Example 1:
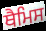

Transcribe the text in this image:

ਥੈਮਿਸ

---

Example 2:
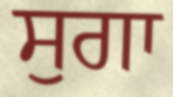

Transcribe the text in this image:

ਸੁਗਾ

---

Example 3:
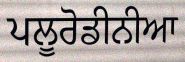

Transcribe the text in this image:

ਪਲੂਰੋਡੀਨੀਆ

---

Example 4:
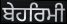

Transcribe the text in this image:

ਬੇਹਰਿਮੀ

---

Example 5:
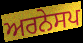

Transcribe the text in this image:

ਅਰਨੇਸਪ